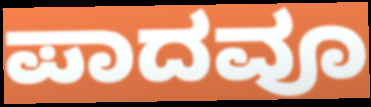
ಪಾದವೂ